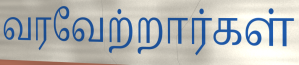
வரவேற்றார்கள்